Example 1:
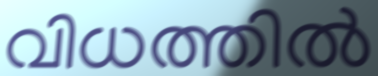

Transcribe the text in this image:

വിധത്തിൽ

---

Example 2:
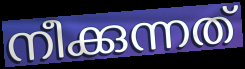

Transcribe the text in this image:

നീക്കുന്നത്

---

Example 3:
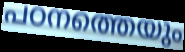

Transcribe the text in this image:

പഠനത്തെയും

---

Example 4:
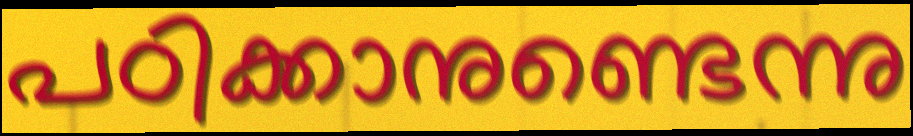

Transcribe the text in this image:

പഠിക്കാനുണ്ടെന്നു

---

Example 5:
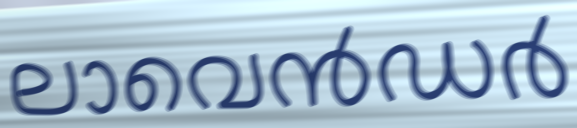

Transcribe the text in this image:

ലാവെൻഡർ